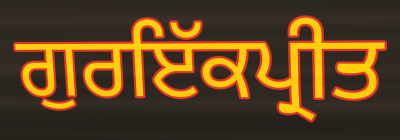
ਗੁਰਇੱਕਪ੍ਰੀਤ